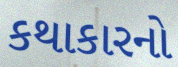
કથાકારનો